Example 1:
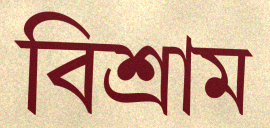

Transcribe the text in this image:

বিশ্ৰাম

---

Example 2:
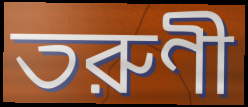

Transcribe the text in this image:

তৰুণী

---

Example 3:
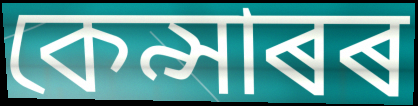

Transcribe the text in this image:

কেন্সাৰৰ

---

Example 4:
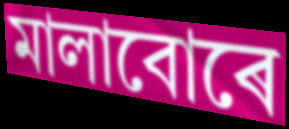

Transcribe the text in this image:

মালাবোৰে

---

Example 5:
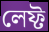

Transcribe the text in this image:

লেফ্ট